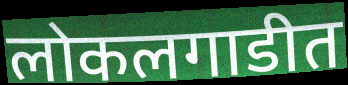
लोकलगाडीत